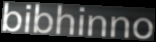
bibhinno